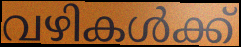
വഴികൾക്ക്